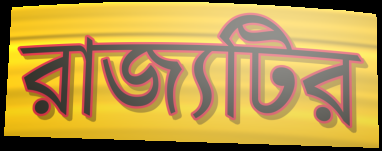
রাজ্যটির